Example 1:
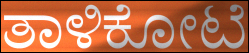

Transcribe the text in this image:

ತಾಳಿಕೋಟೆ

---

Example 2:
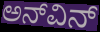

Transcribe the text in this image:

ಅನ್‌ವಿನ್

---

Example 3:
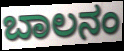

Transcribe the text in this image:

ಬಾಲನಂ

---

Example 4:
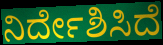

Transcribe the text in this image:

ನಿರ್ದೇಶಿಸಿದೆ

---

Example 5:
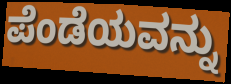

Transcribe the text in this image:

ಪೆಂಡೆಯವನ್ನು